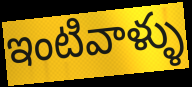
ఇంటివాళ్ళు